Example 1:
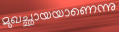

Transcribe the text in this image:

മുഖച്ഛായയാണെന്നു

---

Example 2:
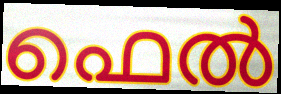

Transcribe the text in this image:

ഫെൽ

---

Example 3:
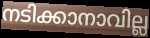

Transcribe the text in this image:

നടിക്കാനാവില്ല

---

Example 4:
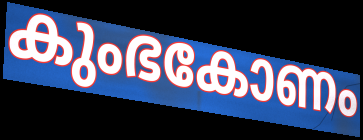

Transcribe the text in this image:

കുംഭകോണം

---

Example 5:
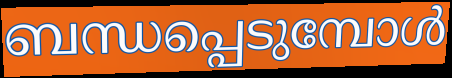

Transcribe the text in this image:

ബന്ധപ്പെടുമ്പോൾ